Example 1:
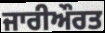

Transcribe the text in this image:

ਜਾਰੀਔਰਤ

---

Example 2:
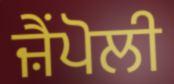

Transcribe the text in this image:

ਜ਼ੈਂਪੋਲੀ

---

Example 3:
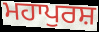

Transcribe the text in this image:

ਮਹਾਪੁਰਸ਼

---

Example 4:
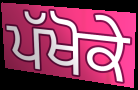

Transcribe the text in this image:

ਪੱਖੋਕੇ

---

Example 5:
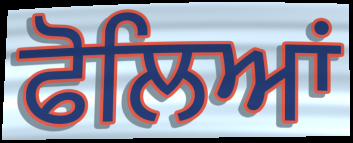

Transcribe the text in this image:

ਫੋਲਿਆਂ